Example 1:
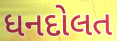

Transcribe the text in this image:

ધનદોલત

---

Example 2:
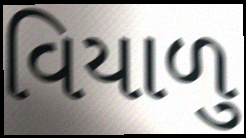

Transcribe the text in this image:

વિયાળુ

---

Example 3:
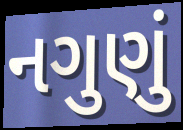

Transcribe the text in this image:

નગુણું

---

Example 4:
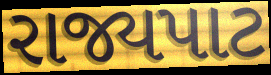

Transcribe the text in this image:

રાજ્યપાટ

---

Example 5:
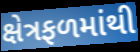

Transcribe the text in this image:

ક્ષેત્રફળમાંથી